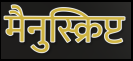
मैनुस्क्रिप्ट